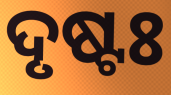
ଦୃଷ୍ଟଃ